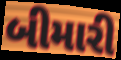
બીમારી